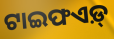
ଟାଇଫଏଡ଼୍